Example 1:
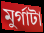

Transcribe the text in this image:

মুর্গাটা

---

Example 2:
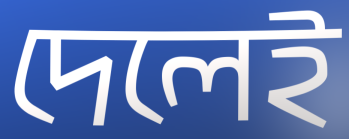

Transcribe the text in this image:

দেলেই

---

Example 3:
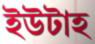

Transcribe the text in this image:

ইউটাহ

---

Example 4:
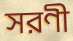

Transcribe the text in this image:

সরণী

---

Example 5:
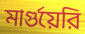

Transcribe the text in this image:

মার্গুয়েরি